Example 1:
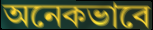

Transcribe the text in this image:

অনেকভাবে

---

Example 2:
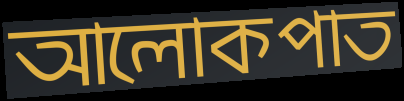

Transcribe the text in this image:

আলোকপাত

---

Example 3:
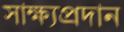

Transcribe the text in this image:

সাক্ষ্যপ্রদান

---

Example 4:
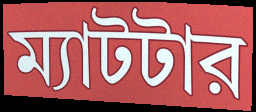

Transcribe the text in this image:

ম্যাটটার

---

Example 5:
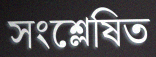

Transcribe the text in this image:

সংশ্লেষিত